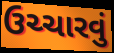
ઉચ્ચારવું